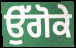
ਉੱਗੋਕੇ